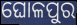
ଘୋଳପୁର